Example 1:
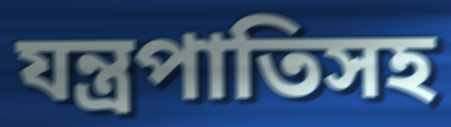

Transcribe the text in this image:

যন্ত্রপাতিসহ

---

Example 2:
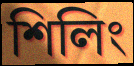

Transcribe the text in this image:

শিলিং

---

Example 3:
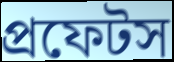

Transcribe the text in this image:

প্রফেটস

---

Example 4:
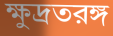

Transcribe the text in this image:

ক্ষুদ্রতরঙ্গ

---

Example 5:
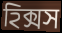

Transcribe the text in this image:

হিক্সস